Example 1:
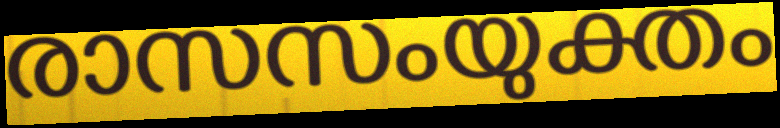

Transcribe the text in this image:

രാസസംയുക്തം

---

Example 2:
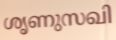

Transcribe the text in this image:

ശൃണുസഖി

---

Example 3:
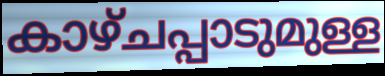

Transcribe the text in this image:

കാഴ്ചപ്പാടുമുള്ള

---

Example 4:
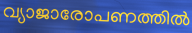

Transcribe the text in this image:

വ്യാജാരോപണത്തിൽ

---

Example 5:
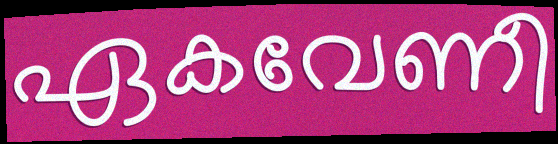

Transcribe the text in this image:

ഏകവേണീ